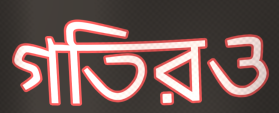
গতিরও